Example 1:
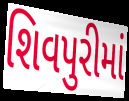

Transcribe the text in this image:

શિવપુરીમાં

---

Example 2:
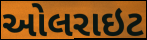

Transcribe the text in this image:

ઓલરાઇટ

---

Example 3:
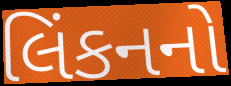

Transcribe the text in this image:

લિંકનનો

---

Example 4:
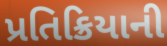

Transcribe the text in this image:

પ્રતિક્રિયાની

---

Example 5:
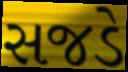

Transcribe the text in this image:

સજડે